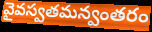
వైవస్వతమన్వంతరం